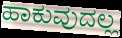
ಹಾಕುವುದಲ್ಲ